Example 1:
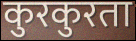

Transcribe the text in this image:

कुरकुरता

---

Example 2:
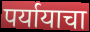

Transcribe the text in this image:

पर्यायाचा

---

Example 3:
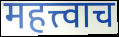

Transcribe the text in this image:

महत्त्वाच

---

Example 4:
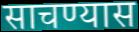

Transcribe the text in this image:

साचण्यास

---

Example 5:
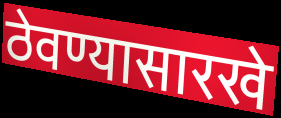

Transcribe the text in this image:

ठेवण्यासारखे